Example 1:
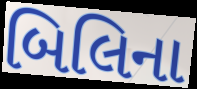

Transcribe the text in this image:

બિલિના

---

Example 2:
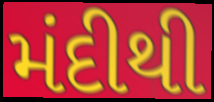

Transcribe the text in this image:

મંદીથી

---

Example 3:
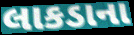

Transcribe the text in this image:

લાકડાના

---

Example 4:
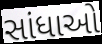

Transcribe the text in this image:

સાંધાઓ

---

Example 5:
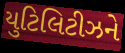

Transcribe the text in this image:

યુટિલિટીઝને